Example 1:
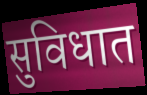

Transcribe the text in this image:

सुविधात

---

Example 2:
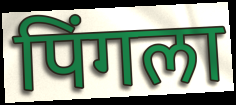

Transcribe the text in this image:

पिंगला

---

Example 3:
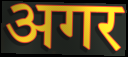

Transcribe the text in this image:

अगर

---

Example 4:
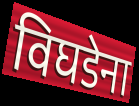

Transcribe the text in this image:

विघडेना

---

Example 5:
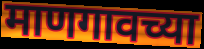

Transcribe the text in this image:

माणगावच्या